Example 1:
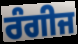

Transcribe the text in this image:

ਰੰਗੀਜ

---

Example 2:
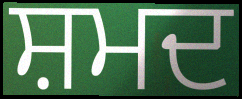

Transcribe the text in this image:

ਸ਼ਮਦ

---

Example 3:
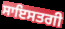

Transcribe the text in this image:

ਸਾਇਸਤਗੀ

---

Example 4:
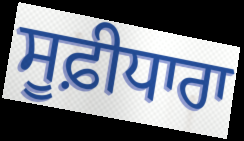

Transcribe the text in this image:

ਸੂਫ਼ੀਧਾਰਾ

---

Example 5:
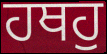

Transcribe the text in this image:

ਹਥਹੁ